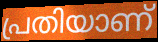
പ്രതിയാണ്